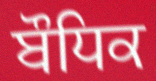
ਬੌਧਿਕ